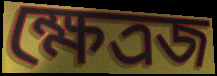
ক্ষেত্রজ